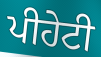
ਪੀਹੇਟੀ